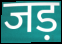
जड़